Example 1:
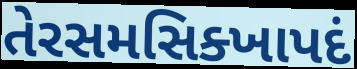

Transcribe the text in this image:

તેરસમસિક્ખાપદં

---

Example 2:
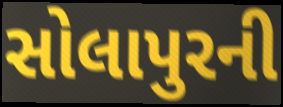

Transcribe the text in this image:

સોલાપુરની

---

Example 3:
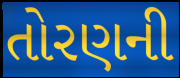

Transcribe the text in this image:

તોરણની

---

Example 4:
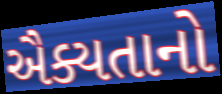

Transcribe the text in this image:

ઐક્યતાનો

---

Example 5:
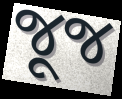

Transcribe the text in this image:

જૂજ